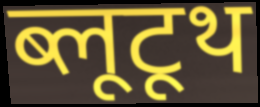
ब्लूटूथ